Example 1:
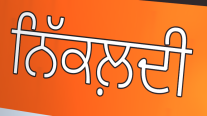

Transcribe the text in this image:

ਨਿੱਕਲ਼ਦੀ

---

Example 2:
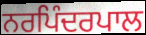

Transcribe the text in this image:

ਨਰਪਿੰਦਰਪਾਲ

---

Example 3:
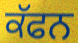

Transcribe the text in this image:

ਕੱਫਨ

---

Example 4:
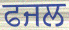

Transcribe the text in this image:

ਫਜਲ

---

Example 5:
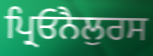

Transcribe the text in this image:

ਪ੍ਰਿਓਨੈਲੁਰਸ